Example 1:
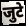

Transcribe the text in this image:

जुटे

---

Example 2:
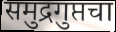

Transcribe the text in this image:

समुद्रगुप्तचा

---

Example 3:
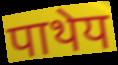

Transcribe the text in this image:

पाथेय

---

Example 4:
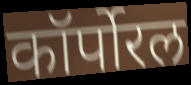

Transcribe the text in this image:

कॉर्पोरल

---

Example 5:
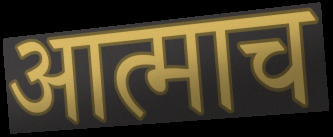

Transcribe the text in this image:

आत्माच